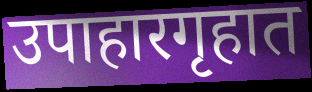
उपाहारगृहात